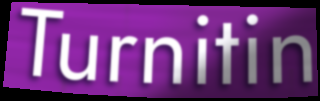
Turnitin